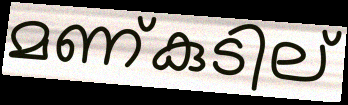
മണ്കുടില്